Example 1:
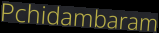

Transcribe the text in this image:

Pchidambaram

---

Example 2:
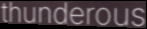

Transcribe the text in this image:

thunderous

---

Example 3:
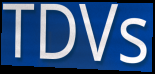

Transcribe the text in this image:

TDVs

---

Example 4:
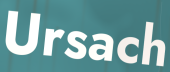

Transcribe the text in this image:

Ursach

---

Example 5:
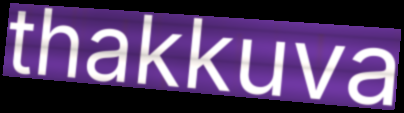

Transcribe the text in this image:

thakkuva